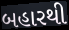
બહારથી